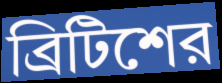
ব্রিটিশের